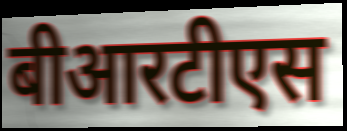
बीआरटीएस